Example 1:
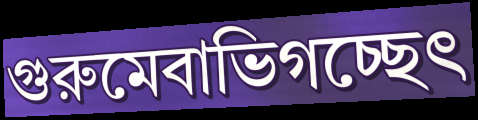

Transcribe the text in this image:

গুরুমেবাভিগচ্ছেৎ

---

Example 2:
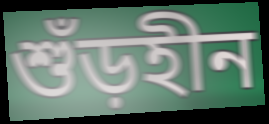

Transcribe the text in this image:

শুঁড়হীন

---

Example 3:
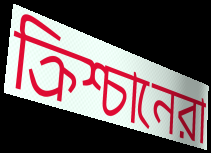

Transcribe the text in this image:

ক্রিশ্চানেরা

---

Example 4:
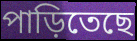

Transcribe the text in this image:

পাড়িতেছে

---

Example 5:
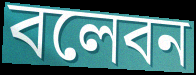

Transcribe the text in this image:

বলেবন